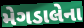
મેગડાલેના